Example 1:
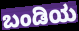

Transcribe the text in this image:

ಬಂಡಿಯ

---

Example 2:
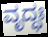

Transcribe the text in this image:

ವೃದ್ಧಃ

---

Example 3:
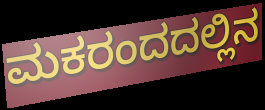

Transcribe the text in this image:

ಮಕರಂದದಲ್ಲಿನ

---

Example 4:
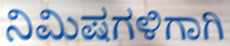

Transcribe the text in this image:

ನಿಮಿಷಗಳಿಗಾಗಿ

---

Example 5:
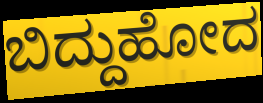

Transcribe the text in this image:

ಬಿದ್ದುಹೋದ